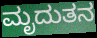
ಮೃದುತನ